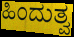
ಹಿಂದುತ್ವ